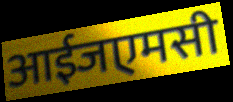
आईजएमसी